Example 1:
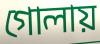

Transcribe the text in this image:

গোলায়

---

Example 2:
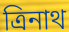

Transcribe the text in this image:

ত্রিনাথ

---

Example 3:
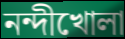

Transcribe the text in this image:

নন্দীখোলা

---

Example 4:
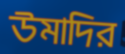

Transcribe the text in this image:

উমাদির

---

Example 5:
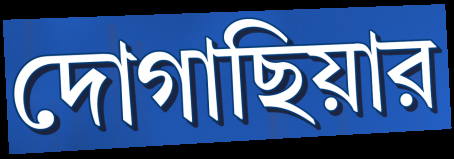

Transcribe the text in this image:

দোগাছিয়ার